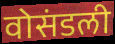
वोसंडली